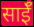
साईॅ